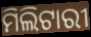
ମିଲିଟାରୀ